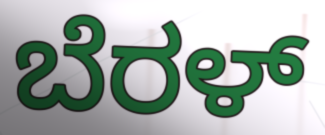
ಬೆರಳ್